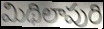
మిథిలాపురి